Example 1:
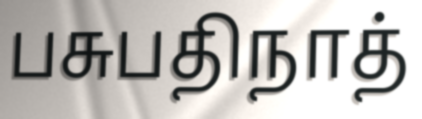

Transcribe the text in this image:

பசுபதிநாத்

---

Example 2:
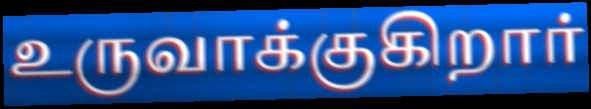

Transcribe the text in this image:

உருவாக்குகிறார்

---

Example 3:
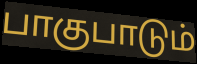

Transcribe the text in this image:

பாகுபாடும்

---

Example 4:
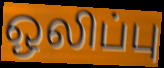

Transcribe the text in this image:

ஒலிப்பு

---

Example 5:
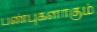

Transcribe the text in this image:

பண்புகளாகும்